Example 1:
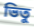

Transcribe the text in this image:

ভিতু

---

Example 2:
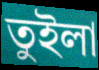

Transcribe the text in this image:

তুইলা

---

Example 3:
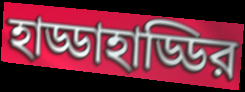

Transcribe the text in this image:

হাড্ডাহাড্ডির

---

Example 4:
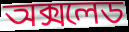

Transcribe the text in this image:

অক্সলেড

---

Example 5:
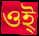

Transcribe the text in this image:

ওই্